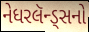
નેધરલૅન્ડ્સનો